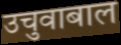
उचुवाबाल